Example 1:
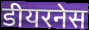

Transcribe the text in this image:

डीयरनेस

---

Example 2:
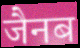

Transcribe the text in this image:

जैनब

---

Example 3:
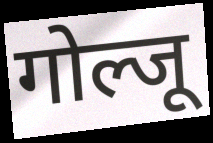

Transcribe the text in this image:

गोल्जू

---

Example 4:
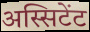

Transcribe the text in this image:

अस्सिटेंट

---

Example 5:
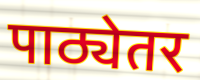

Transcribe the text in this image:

पाठ्येतर